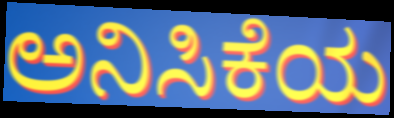
ಅನಿಸಿಕೆಯ